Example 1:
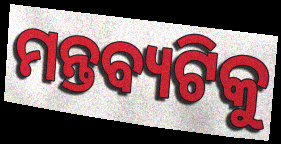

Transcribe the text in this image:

ମନ୍ତବ୍ୟଟିକୁ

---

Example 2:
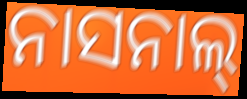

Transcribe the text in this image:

ନାସନାଲ୍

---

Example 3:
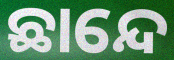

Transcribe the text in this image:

ଛାନ୍ଦେ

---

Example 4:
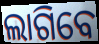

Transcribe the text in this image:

ଲାଗିବେ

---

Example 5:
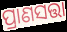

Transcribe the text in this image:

ପ୍ରାଣସତ୍ତା